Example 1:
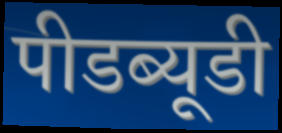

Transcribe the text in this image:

पीडब्यूडी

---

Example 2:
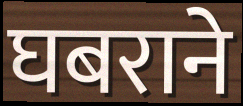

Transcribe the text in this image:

घबराने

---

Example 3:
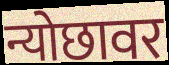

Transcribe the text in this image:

न्योछावर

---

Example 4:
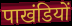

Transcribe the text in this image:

पाखंडियों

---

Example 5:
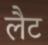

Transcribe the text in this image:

लैट